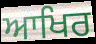
ਆਖਿਰ